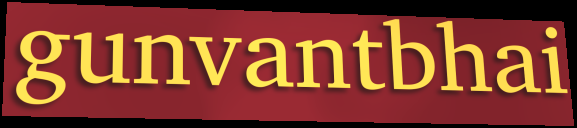
gunvantbhai